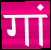
गां